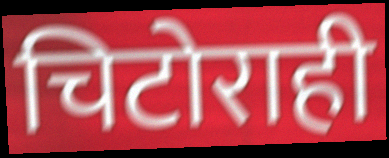
चिटोराही